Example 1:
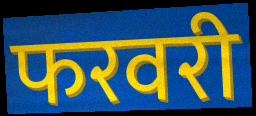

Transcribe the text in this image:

फरवरी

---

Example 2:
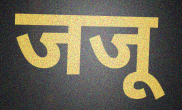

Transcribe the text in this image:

जजू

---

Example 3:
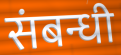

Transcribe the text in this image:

संबन्धी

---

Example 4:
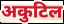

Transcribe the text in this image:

अकुटिल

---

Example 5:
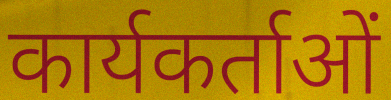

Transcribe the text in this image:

कार्यकर्ताओं